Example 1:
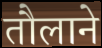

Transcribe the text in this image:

तौलाने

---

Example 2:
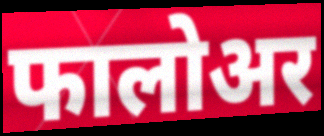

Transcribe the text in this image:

फालोअर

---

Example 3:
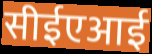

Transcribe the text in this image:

सीईएआई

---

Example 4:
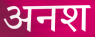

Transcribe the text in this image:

अनश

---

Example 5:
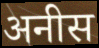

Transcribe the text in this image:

अनीस